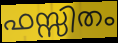
ഫസ്സിതം